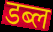
डब्ल